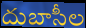
దుబాసీల